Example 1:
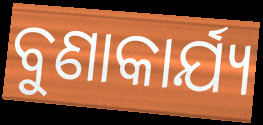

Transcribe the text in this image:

ବୁଣାକାର୍ଯ୍ୟ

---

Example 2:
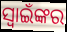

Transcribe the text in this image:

ସ୍ୱାଇଁଙ୍କର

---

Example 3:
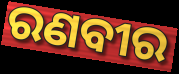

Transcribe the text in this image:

ରଣବୀର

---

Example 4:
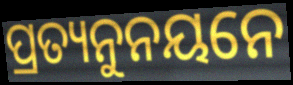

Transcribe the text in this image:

ପ୍ରତ୍ୟନୁନୟନେ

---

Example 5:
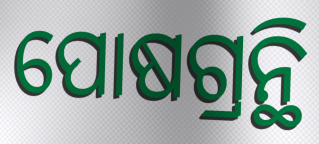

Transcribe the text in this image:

ପୋଷଗ୍ରନ୍ଥି